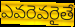
ఎవరెవరైతే